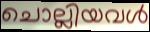
ചൊല്ലിയവൾ